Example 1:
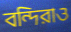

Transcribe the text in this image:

বন্দিরাও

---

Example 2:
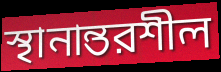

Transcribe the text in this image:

স্থানান্তরশীল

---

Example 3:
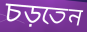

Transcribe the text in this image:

চড়তেন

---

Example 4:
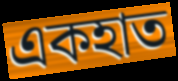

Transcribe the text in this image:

একহাত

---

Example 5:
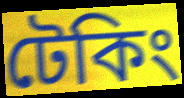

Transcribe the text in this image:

টেকিং